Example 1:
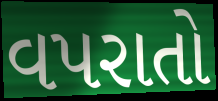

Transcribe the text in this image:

વપરાતો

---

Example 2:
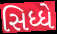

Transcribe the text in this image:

સિધ્ધે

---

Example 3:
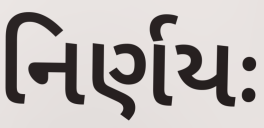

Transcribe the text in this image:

નિર્ણયઃ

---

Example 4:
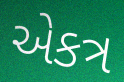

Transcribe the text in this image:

એકત્ર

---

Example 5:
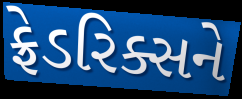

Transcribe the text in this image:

ફ્રેડરિક્સને